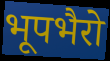
भूपभैरो